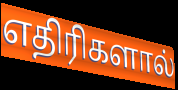
எதிரிகளால்